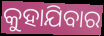
କୁହାଯିବାର